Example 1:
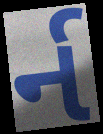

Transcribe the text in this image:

ર્ન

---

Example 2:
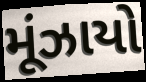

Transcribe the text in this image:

મૂંઝાયો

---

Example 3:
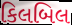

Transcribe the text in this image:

કિલબિલ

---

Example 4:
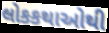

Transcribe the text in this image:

લોકકથાઓથી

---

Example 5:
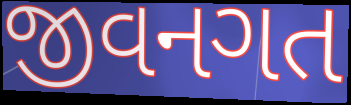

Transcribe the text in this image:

જીવનગત